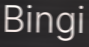
Bingi